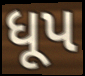
ધૂપ